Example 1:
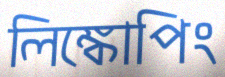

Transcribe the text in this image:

লিঙ্কোপিং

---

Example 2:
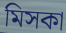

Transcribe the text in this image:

মিসকা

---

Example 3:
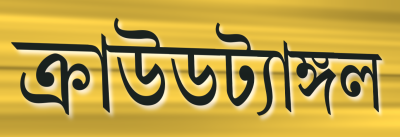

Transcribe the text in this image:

ক্রাউডট্যাঙ্গল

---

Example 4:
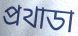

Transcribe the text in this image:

প্রথাডা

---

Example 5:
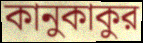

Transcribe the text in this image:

কানুকাকুর